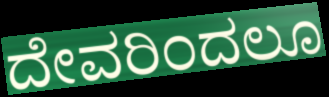
ದೇವರಿಂದಲೂ